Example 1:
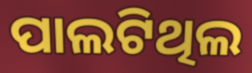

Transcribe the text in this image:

ପାଲଟିଥିଲ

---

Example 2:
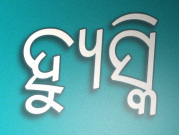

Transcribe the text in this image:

ହ୍ୟୁସ୍କି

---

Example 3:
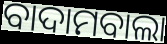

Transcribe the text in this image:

ବାଦାମବାଲା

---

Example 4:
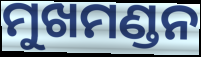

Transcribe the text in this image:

ମୁଖମଣ୍ଡନ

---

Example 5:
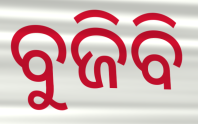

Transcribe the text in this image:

ବୁଜିବି